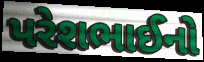
પરેશભાઈનો